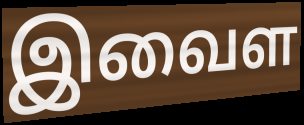
இவைள